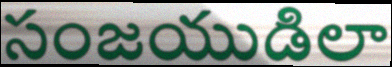
సంజయుడిలా